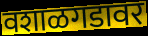
वशाळगडावर